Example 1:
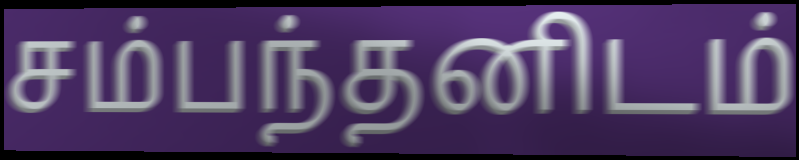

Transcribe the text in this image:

சம்பந்தனிடம்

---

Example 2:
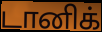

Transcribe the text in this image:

டானிக்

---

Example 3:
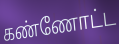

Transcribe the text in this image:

கண்ணோட்ட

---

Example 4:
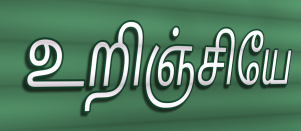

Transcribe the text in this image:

உறிஞ்சியே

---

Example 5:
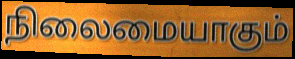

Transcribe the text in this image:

நிலைமையாகும்